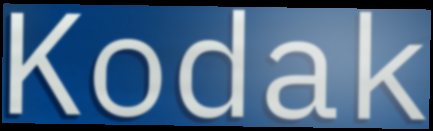
Kodak